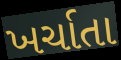
ખર્ચાતા